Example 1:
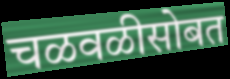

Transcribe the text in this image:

चळवळीसोबत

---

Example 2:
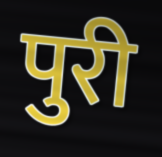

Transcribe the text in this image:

पुरी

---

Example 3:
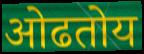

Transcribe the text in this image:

ओढतोय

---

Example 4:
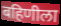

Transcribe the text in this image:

बहिणीला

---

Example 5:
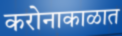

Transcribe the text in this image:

करोनाकाळात